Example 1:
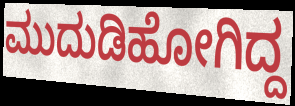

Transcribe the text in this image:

ಮುದುಡಿಹೋಗಿದ್ದ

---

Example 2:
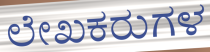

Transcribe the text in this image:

ಲೇಖಕರುಗಳ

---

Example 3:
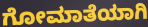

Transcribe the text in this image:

ಗೋಮಾತೆಯಾಗಿ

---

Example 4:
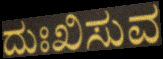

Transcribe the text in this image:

ದುಃಖಿಸುವ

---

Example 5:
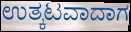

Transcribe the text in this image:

ಉತ್ಕಟವಾದಾಗ